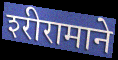
श्रीरामाने